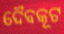
ଦୈବକୂଟ